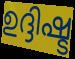
ഉദ്ദിഷ്ട